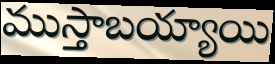
ముస్తాబయ్యాయి